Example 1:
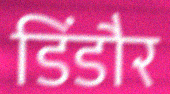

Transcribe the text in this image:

डिंडौर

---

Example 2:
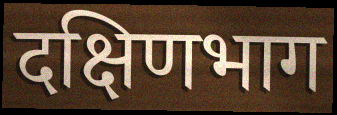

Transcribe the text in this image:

दक्षिणभाग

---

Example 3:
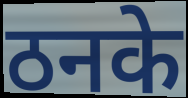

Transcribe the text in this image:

ठनके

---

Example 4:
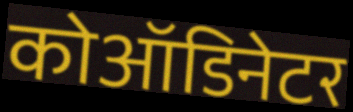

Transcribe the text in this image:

कोऑडिनेटर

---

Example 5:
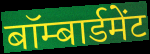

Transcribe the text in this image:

बॉम्बार्डमेंट